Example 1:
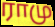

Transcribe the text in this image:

ராமு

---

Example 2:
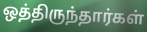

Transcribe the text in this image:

ஒத்திருந்தார்கள்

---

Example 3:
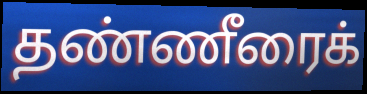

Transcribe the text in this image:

தண்ணீரைக்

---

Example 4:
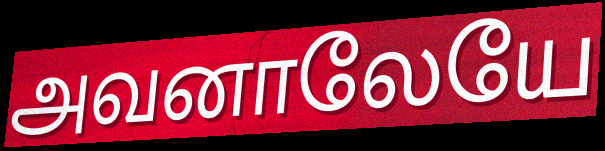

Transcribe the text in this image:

அவனாலேயே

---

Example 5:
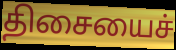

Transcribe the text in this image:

திசையைச்